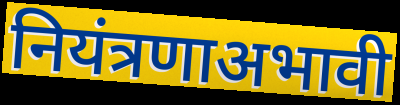
नियंत्रणाअभावी